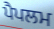
ਪੈਪਲਮ